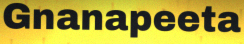
Gnanapeeta